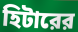
হিটারের